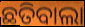
ଛତିବାଲା